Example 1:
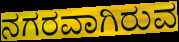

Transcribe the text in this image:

ನಗರವಾಗಿರುವ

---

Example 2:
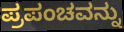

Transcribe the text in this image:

ಪ್ರಪಂಚವನ್ನು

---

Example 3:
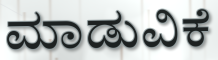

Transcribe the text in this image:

ಮಾಡುವಿಕೆ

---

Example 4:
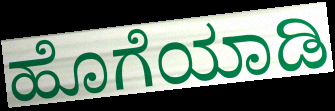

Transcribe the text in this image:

ಹೊಗೆಯಾಡಿ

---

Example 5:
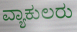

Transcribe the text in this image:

ವ್ಯಾಕುಲರು